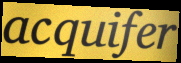
acquifer